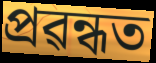
প্ৰৱন্ধত